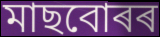
মাছবোৰৰ